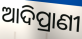
ଆଦିପ୍ରାଣୀ